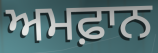
ਅਮਫ਼ਾਨ